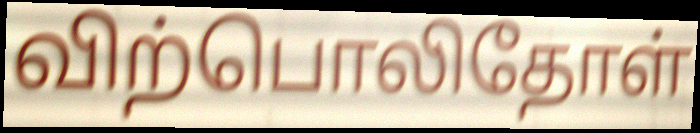
விற்பொலிதோள்